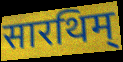
सारथिम्